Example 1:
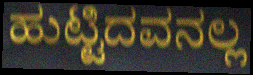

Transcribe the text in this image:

ಹುಟ್ಟಿದವನಲ್ಲ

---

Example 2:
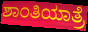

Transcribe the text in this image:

ಶಾಂತಿಯಾತ್ರೆ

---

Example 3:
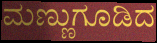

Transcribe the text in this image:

ಮಣ್ಣುಗೂಡಿದ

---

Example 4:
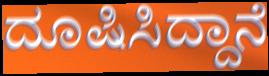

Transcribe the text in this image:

ದೂಷಿಸಿದ್ದಾನೆ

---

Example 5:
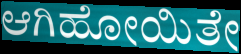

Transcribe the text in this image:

ಆಗಿಹೋಯಿತೇ